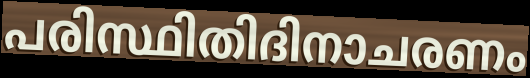
പരിസ്ഥിതിദിനാചരണം